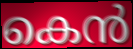
കെൻ